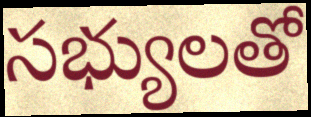
సభ్యులతో